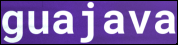
guajava